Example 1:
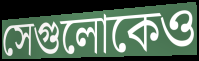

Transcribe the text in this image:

সেগুলোকেও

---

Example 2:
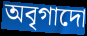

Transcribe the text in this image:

অবৃগাদো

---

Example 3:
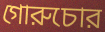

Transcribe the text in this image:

গোরুচোর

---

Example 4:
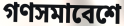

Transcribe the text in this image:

গণসমাবেশে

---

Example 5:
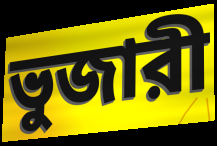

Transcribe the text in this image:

ভুজারী